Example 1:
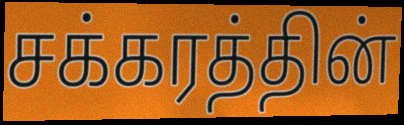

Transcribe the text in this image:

சக்கரத்தின்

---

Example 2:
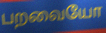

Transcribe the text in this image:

பறவையோ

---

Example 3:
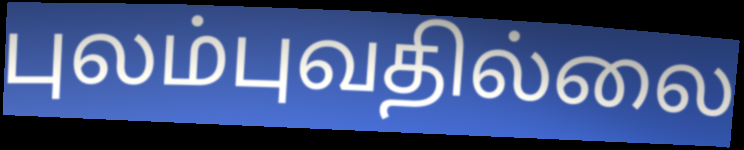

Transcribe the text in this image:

புலம்புவதில்லை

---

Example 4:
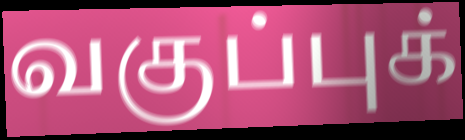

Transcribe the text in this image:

வகுப்புக்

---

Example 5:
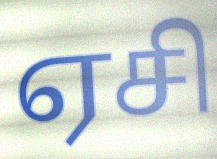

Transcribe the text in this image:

ஏசி